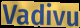
Vadivu